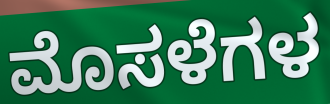
ಮೊಸಳೆಗಳ